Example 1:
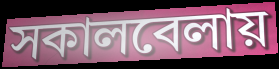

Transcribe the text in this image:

সকালবেলায়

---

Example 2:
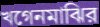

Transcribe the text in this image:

খগেনমাঝির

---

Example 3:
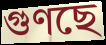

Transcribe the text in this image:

গুণছে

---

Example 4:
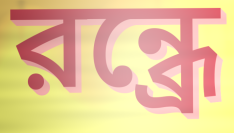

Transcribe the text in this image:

রন্ধ্রে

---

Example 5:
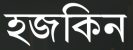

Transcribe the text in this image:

হজকিন